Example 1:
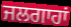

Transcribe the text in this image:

ਜਲਗਾਹਾਂ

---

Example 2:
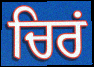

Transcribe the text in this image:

ਚਿਰਂ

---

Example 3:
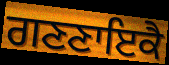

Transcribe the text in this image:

ਗਣਣਾਇਕੈ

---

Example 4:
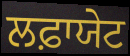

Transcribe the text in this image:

ਲਫ਼ਾਯੇਟ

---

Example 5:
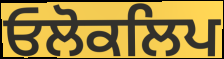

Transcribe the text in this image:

ਓਲੋਕਲਿਪ